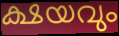
ക്ഷയവും